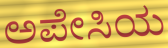
ಅಪೇಸಿಯ